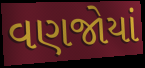
વણજોયાં